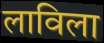
लाविला